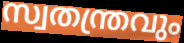
സ്വതന്ത്രവും